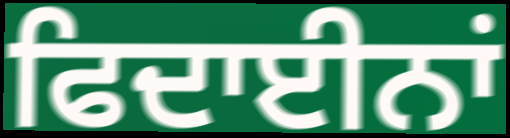
ਫਿਦਾਈਨਾਂ